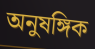
অনুষঙ্গিক